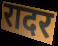
रादर